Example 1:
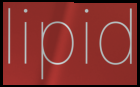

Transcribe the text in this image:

lipid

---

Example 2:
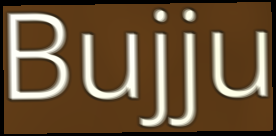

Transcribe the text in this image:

Bujju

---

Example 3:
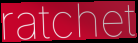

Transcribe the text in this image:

ratchet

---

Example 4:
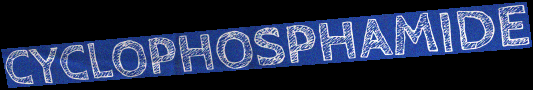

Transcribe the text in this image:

CYCLOPHOSPHAMIDE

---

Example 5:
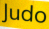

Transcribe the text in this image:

Judo